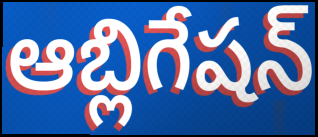
ఆబ్లిగేషన్